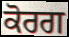
ਕੋਰਗ